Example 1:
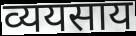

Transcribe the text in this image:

व्ययसाय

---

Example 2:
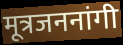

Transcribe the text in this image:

मूत्रजननांगी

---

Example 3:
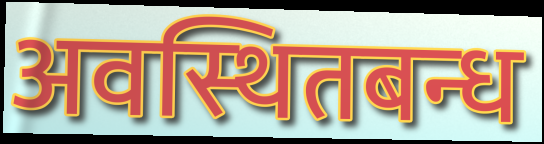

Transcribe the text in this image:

अवस्थितबन्ध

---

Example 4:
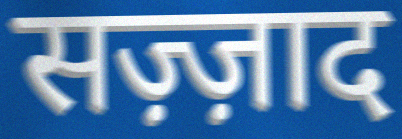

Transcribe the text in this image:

सज़्ज़ाद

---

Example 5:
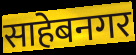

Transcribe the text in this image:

साहेबनगर